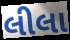
લીલા